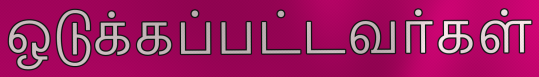
ஒடுக்கப்பட்டவர்கள்